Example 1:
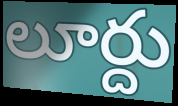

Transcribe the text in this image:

లూర్దు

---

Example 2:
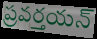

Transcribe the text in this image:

ప్రవర్తయన్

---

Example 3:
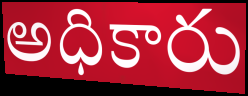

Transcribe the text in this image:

అధికారు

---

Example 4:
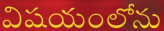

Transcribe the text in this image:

విషయంలోను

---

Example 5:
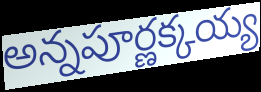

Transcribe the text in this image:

అన్నపూర్ణక్కయ్య